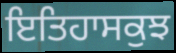
ਇਤਿਹਾਸਕੁਝ